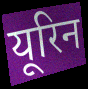
यूरिन